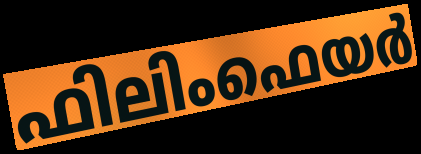
ഫിലിംഫെയർ